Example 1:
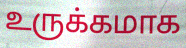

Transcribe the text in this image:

உருக்கமாக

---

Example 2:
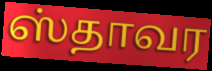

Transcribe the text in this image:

ஸ்தாவர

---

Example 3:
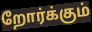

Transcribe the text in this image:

றோர்க்கும்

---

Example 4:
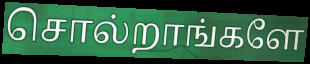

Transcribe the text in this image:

சொல்றாங்களே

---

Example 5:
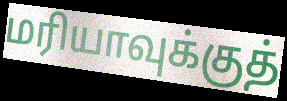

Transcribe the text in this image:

மரியாவுக்குத்